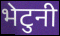
भेटुनी